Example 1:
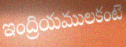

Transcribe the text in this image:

ఇంద్రియములకంటె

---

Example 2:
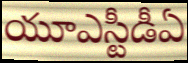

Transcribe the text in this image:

యూఎస్టీడీఏ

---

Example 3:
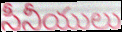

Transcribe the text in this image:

సీనీయులు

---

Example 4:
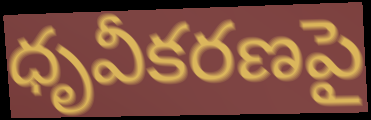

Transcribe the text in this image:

ధృవీకరణపై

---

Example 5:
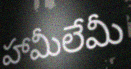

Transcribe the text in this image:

హామీలేమీ